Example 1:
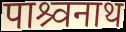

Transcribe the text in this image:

पाश्र्वनाथ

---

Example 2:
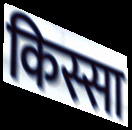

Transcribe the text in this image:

किस्सा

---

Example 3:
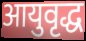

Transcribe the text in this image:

आयुवृद्ध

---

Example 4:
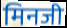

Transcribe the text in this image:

मिनजी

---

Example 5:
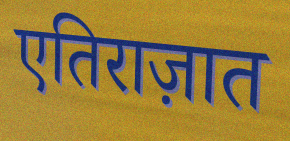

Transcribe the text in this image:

एतिराज़ात